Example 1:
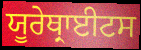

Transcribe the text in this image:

ਯੂਰੇਥ੍ਰਾਈਟਸ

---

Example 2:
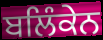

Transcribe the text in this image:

ਬਲਿੰਕੇਨ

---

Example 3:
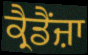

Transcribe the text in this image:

ਕ੍ਰੈਡੈਂਜ਼ਾ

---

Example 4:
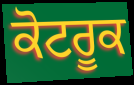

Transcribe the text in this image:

ਕੋਟਰੂਕ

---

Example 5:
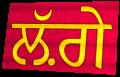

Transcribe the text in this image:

ਲ਼ੱਗੇ